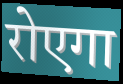
रोएगा